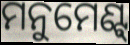
ମନୁମେଣ୍ଟ୍